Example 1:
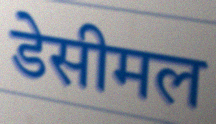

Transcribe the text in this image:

डेसीमल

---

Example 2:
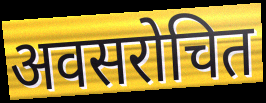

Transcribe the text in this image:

अवसरोचित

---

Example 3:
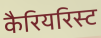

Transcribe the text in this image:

कैरियरिस्ट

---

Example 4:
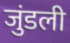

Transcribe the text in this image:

जुंडली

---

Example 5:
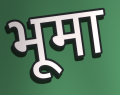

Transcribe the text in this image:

भूमा